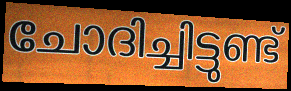
ചോദിച്ചിട്ടുണ്ട്